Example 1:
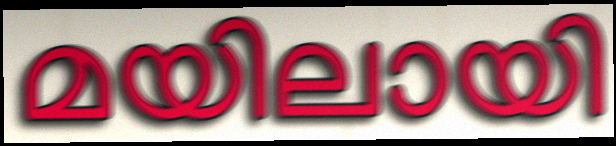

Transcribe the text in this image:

മയിലായി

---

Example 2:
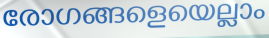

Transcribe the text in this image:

രോഗങ്ങളെയെല്ലാം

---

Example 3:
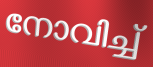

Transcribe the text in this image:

നോവിച്ച്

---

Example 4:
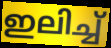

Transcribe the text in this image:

ഇലിച്ച്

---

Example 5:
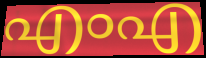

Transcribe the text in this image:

എംഎ